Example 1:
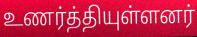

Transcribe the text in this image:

உணர்த்தியுள்ளனர்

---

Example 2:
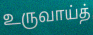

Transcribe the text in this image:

உருவாய்த்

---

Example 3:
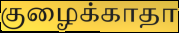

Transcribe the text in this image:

குழைக்காதா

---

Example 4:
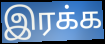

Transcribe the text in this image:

இரக்க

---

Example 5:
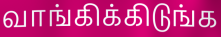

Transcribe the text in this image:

வாங்கிக்கிடுங்க